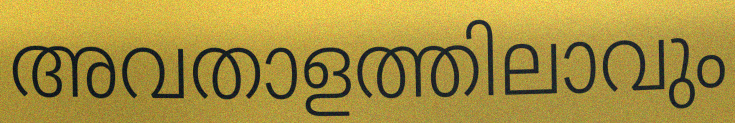
അവതാളത്തിലാവും